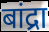
बांद्रा